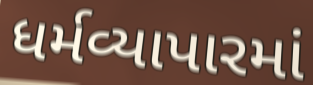
ધર્મવ્યાપારમાં